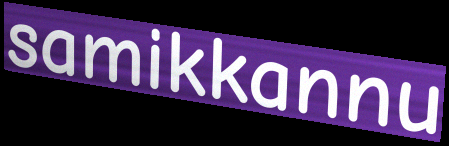
samikkannu